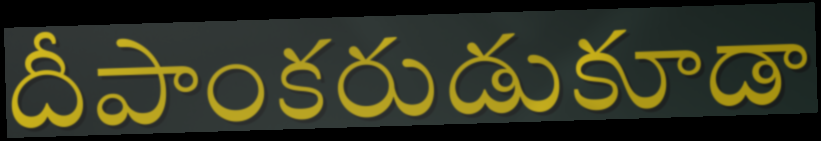
దీపాంకరుడుకూడా